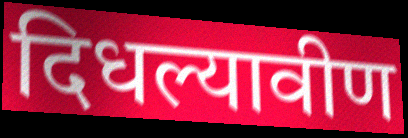
दिधल्यावीण